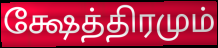
க்ஷேத்திரமும்